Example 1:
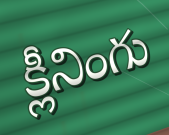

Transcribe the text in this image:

క్లీనింగు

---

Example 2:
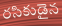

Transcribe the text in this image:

రసికుడైన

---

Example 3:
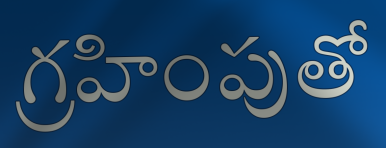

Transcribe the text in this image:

గ్రహింపుతో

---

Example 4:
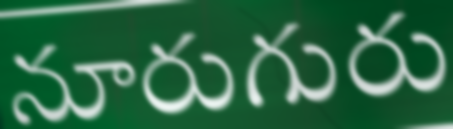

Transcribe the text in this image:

నూరుగురు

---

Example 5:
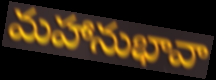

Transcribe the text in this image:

మహానుభావా